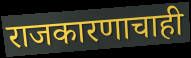
राजकारणाचाही